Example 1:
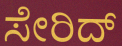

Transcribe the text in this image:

ಸೇರಿದ್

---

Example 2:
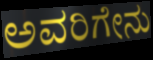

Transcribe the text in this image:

ಅವರಿಗೇನು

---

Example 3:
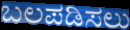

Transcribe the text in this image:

ಬಲಪಡಿಸಲು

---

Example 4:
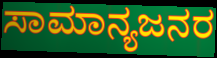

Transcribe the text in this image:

ಸಾಮಾನ್ಯಜನರ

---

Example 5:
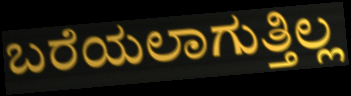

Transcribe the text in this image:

ಬರೆಯಲಾಗುತ್ತಿಲ್ಲ